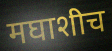
मघाशीच